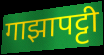
गाझापट्टी